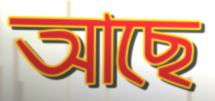
আছে